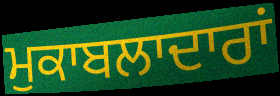
ਮੁਕਾਬਲਾਦਾਰਾਂ